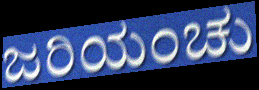
ಜರಿಯಂಚು